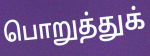
பொறுத்துக்